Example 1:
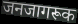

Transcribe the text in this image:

जनजागरूक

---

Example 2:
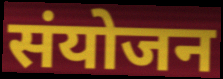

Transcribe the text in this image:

संयोजन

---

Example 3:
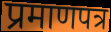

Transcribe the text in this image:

प्रमाणपत्र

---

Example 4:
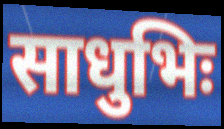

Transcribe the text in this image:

साधुभिः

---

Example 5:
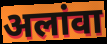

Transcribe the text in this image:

अलांवा